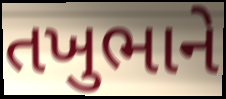
તખુભાને